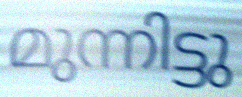
മുന്നിട്ടു